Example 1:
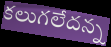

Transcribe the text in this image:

కలుగలేదన్న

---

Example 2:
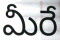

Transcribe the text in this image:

మీరే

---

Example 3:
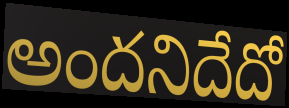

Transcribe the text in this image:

అందనిదేదో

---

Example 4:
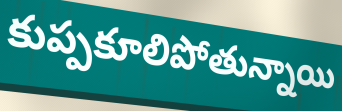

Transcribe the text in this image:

కుప్పకూలిపోతున్నాయి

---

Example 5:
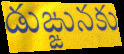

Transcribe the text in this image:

డుఙ్ఙునకు